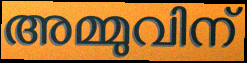
അമ്മുവിന്